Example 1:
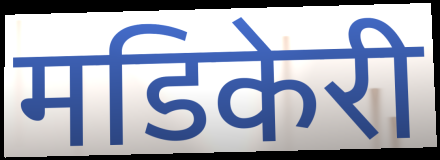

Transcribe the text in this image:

मडिकेरी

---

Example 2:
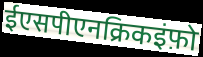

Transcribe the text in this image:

ईएसपीएनक्रिकइंफ़ो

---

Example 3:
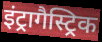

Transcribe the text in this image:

इंट्रागैस्ट्रिक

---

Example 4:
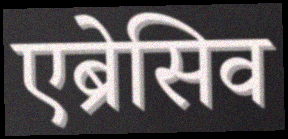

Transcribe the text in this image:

एब्रेसिव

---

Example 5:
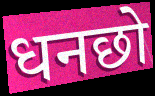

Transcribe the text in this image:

धनछो